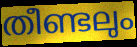
തീണ്ടലും